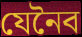
যেনৈব